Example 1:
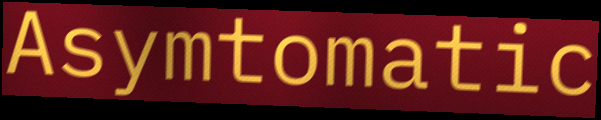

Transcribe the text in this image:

Asymtomatic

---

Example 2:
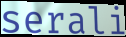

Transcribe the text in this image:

serali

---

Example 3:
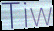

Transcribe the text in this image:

Tiw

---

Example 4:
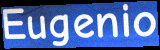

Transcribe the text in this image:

Eugenio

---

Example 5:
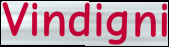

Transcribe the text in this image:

Vindigni